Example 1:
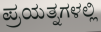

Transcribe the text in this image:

ಪ್ರಯತ್ನಗಳಲ್ಲಿ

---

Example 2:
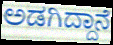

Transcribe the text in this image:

ಅಡಗಿದ್ದಾನೆ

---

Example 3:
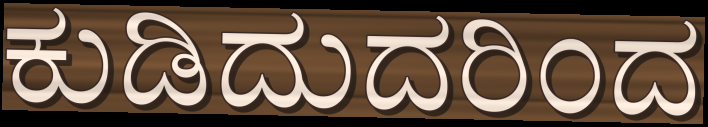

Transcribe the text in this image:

ಕುಡಿದುದರಿಂದ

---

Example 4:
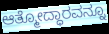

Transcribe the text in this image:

ಆತ್ಮೋದ್ಧಾರವನ್ನೂ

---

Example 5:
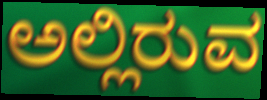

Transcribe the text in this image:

ಅಲ್ಲಿರುವ